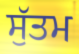
ਸੁੱਤਮ